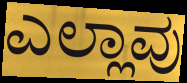
ಎಲ್ಲಾವು